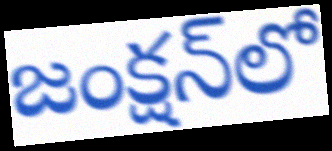
జంక్షన్‌లో